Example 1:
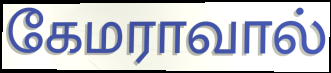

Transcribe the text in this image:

கேமராவால்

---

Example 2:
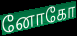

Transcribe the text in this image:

னோகோ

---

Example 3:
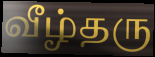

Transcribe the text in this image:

வீழ்தரு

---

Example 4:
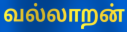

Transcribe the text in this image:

வல்லாறன்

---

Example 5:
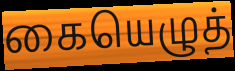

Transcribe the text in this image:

கையெழுத்